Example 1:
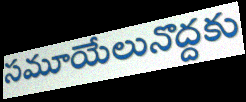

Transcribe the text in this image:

సమూయేలునొద్దకు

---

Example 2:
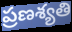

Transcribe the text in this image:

ప్రణశ్యతి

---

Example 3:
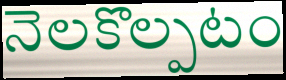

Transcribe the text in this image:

నెలకొల్పటం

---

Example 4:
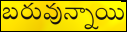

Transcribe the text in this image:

బరువున్నాయి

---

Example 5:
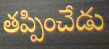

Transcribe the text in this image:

తప్పించేడు